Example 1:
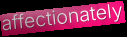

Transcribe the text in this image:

affectionately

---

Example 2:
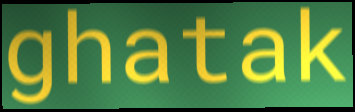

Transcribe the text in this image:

ghatak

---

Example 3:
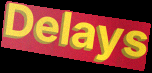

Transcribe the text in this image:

Delays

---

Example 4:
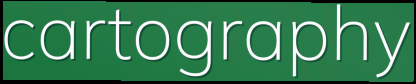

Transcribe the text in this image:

cartography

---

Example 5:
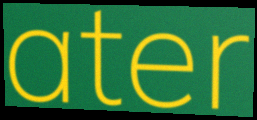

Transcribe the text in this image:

ater